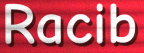
Racib